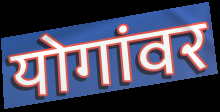
योगांवर